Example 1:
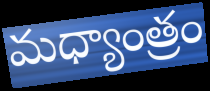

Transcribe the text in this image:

మధ్యాంత్రం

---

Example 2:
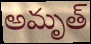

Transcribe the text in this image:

అమృత్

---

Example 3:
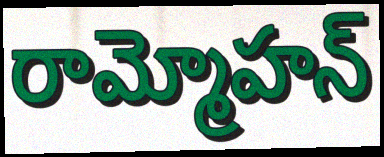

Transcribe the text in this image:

రామ్మోహన్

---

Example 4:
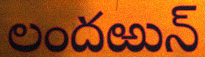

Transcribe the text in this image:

లందఱున్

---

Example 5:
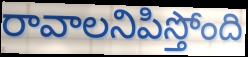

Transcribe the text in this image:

రావాలనిపిస్తోంది